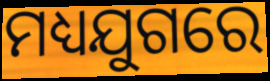
ମଧ୍ୟଯୁଗରେ